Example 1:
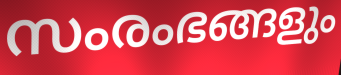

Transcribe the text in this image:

സംരംഭങ്ങളും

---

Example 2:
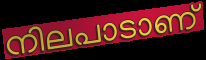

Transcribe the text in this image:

നിലപാടാണ്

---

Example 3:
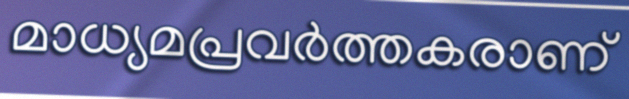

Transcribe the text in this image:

മാധ്യമപ്രവർത്തകരാണ്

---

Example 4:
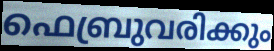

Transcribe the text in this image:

ഫെബ്രുവരിക്കും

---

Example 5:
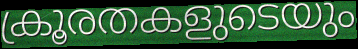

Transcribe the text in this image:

ക്രൂരതകളുടെയും